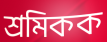
শ্ৰমিকক